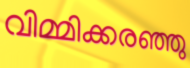
വിമ്മിക്കരഞ്ഞു